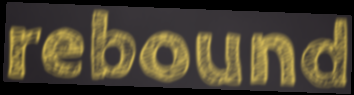
rebound